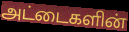
அட்டைகளின்